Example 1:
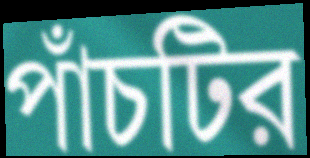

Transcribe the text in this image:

পাঁচটির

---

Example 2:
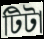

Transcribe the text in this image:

টিটা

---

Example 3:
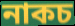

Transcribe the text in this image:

নাকচ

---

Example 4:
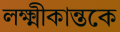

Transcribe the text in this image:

লক্ষ্মীকান্তকে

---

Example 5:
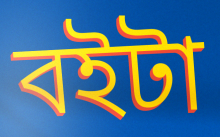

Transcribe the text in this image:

বইটা